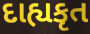
દાહ્યકૃત